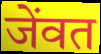
जेंवत